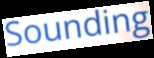
Sounding